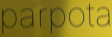
parpota